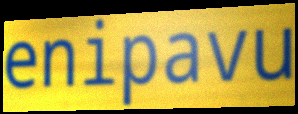
enipavu